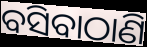
ବସିବାଠାଣି